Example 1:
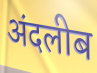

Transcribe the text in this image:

अंदलीब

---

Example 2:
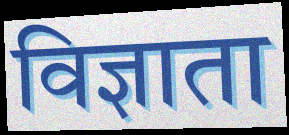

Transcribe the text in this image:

विज्ञाता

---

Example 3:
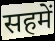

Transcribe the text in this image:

सहमें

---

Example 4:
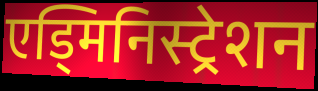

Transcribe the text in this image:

एड्मिनिस्ट्रेशन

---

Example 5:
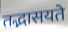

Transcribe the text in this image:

तद्भासयते